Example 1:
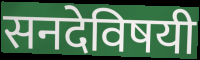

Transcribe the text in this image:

सनदेविषयी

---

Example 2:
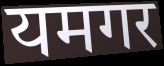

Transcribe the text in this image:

यमगर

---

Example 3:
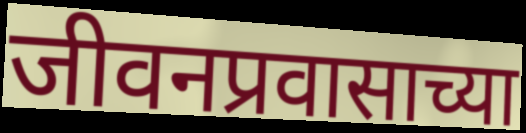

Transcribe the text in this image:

जीवनप्रवासाच्या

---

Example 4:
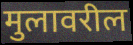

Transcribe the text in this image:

मुलावरील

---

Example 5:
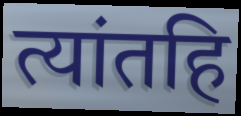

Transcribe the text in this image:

त्यांतहि